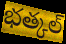
భత్కల్